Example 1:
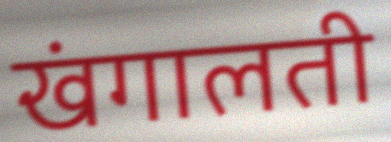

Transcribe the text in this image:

खंगालती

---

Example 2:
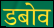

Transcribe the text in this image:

डबोव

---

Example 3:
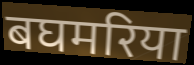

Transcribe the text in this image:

बघमरिया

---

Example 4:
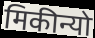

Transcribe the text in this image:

मिकीन्यो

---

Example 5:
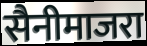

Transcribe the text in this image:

सैनीमाजरा